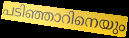
പടിഞ്ഞാറിനെയും